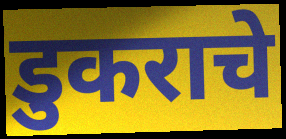
डुकराचे